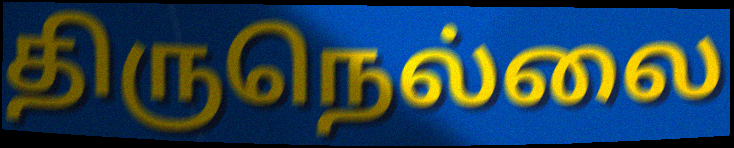
திருநெல்லை